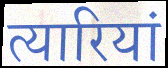
त्यारियां